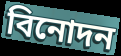
বিনোদন